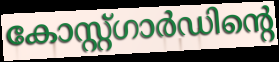
കോസ്റ്റ്ഗാർഡിന്റെ